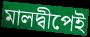
মালদ্বীপেই